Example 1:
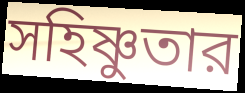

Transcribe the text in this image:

সহিষ্ণুতার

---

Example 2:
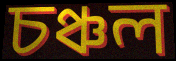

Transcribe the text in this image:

চঞ্চল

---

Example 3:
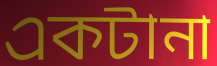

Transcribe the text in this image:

একটানা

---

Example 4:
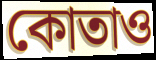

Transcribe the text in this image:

কোতাও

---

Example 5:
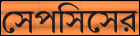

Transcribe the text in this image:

সেপসিসের